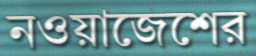
নওয়াজেশের